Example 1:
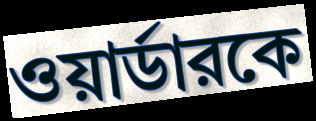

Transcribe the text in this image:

ওয়ার্ডারকে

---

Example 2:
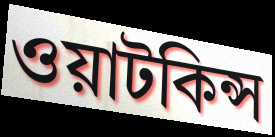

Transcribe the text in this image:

ওয়াটকিন্স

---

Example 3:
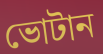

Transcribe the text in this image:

ভোটান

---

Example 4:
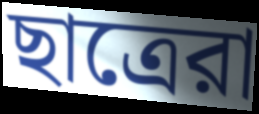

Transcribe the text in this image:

ছাত্রেরা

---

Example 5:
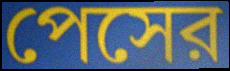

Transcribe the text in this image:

পেসের